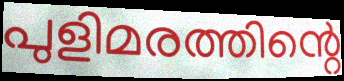
പുളിമരത്തിന്റെ